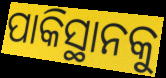
ପାକିସ୍ଥାନକୁ